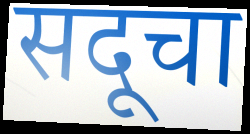
सदूचा